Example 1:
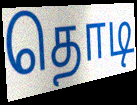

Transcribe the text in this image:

தொடி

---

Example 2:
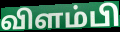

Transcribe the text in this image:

விளம்பி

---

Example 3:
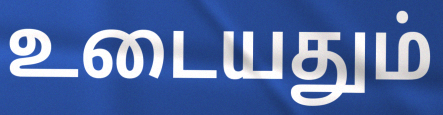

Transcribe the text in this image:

உடையதும்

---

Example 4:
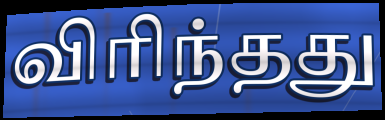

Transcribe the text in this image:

விரிந்தது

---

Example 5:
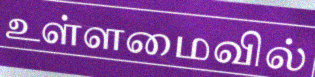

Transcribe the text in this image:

உள்ளமைவில்